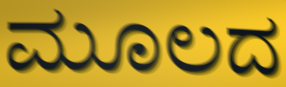
ಮೂಲದ